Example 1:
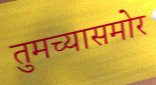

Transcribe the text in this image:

तुमच्यासमोर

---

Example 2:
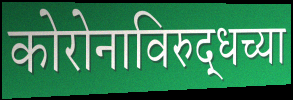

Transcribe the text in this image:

कोरोनाविरुद्धच्या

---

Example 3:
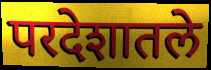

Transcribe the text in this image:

परदेशातले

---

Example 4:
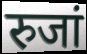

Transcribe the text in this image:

रुजां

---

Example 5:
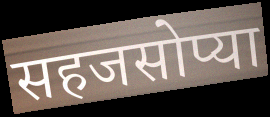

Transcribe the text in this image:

सहजसोप्या